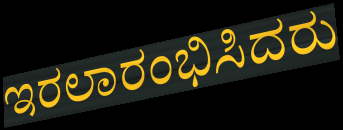
ಇರಲಾರಂಭಿಸಿದರು